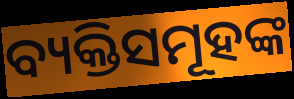
ବ୍ୟକ୍ତିସମୂହଙ୍କ